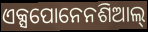
ଏକ୍ସପୋନେନଶିଆଲ୍